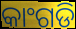
କାଂଗଡି